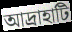
আদ্রাহাটি